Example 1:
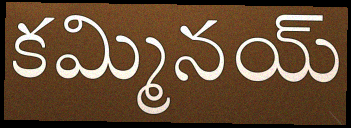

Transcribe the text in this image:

కమ్మినయ్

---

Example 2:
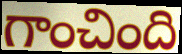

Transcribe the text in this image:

గాంచింది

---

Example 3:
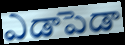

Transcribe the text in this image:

ఎడాపెడా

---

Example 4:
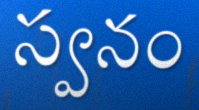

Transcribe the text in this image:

స్వనం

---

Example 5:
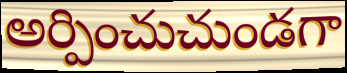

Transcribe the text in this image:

అర్పించుచుండగా